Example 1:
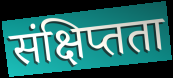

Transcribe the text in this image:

संक्षिप्तता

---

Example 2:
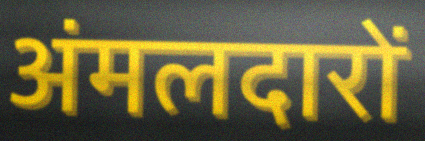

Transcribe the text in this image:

अंमलदारों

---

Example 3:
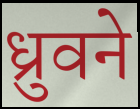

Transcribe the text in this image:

ध्रुवने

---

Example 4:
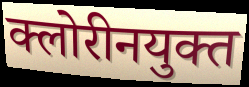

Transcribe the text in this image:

क्लोरीनयुक्त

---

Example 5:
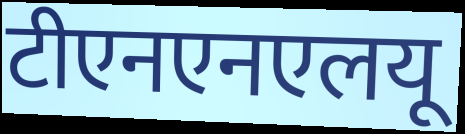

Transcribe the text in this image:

टीएनएनएलयू